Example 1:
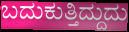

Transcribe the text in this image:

ಬದುಕುತ್ತಿದ್ದುದು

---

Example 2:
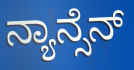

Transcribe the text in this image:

ನ್ಯಾನ್ಸೆನ್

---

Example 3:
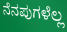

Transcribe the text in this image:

ನೆನಪುಗಳೆಲ್ಲ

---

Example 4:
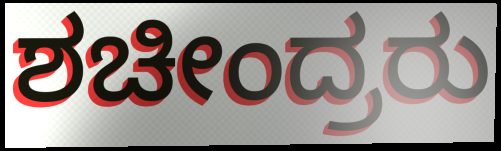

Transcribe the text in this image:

ಶಚೀಂದ್ರರು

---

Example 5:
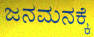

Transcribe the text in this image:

ಜನಮನಕ್ಕೆ